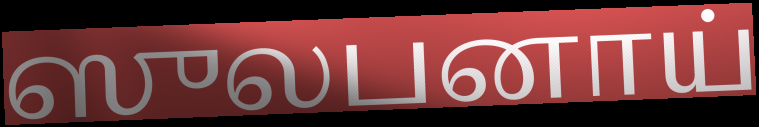
ஸுலபனாய்